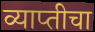
व्याप्तीचा